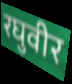
रघुवीर